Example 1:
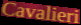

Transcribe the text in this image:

Cavalieri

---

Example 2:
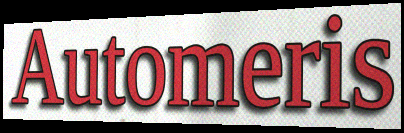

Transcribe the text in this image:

Automeris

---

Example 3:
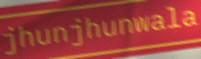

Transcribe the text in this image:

jhunjhunwala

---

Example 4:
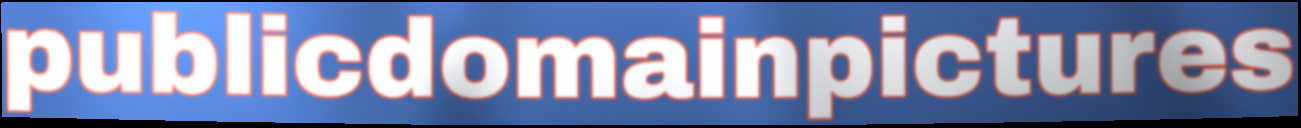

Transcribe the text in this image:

publicdomainpictures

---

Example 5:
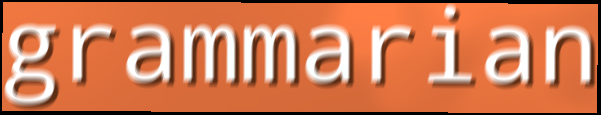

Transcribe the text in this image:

grammarian